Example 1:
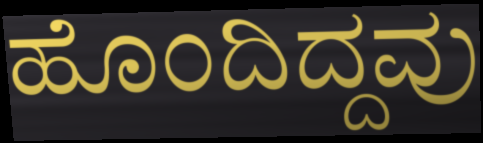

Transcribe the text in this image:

ಹೊಂದಿದ್ದವು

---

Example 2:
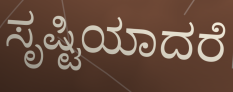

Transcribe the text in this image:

ಸೃಷ್ಟಿಯಾದರೆ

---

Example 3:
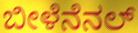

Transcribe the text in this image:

ಬೀಳೆನೆನಲ್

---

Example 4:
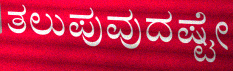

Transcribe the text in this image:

ತಲುಪುವುದಷ್ಟೇ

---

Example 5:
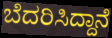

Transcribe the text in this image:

ಬೆದರಿಸಿದ್ದಾನೆ